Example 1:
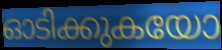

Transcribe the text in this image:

ഓടിക്കുകയോ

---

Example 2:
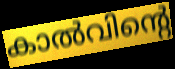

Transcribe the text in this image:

കാൽവിന്റെ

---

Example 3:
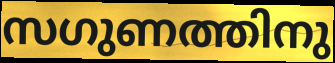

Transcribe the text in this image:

സഗുണത്തിനു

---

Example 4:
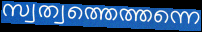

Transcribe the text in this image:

സ്വത്വത്തെത്തന്നെ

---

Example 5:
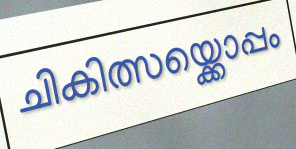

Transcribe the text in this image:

ചികിത്സയ്ക്കൊപ്പം